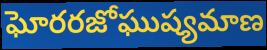
ఘోరరజోఘుష్యమాణ